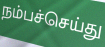
நம்பச்செய்து